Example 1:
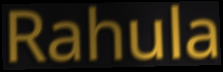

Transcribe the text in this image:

Rahula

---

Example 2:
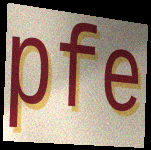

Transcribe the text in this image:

pfe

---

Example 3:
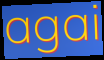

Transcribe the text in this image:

agai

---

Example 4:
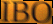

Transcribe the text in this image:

IBO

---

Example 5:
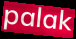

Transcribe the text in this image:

palak